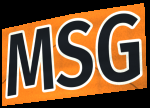
MSG